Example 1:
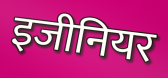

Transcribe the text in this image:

इजीनियर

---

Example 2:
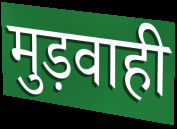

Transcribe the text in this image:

मुड़वाही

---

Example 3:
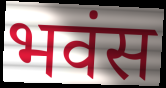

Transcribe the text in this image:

भवंस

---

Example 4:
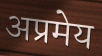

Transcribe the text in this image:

अप्रमेय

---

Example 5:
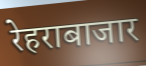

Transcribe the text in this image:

रेहराबाजार